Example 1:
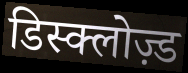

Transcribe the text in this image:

डिस्क्लोज़्ड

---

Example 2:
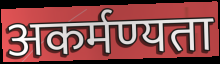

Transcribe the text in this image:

अकर्मण्यता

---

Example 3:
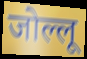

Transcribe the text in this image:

जोल्लू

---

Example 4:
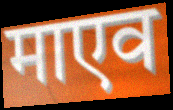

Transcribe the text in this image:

माएव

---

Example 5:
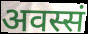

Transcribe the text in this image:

अवस्सं